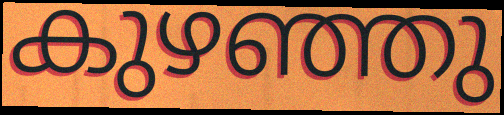
കുഴഞ്ഞു